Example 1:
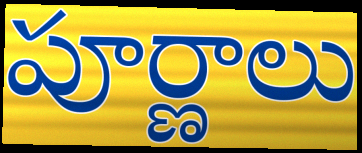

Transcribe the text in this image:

పూర్ణాలు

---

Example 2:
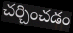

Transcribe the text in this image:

చర్చించడం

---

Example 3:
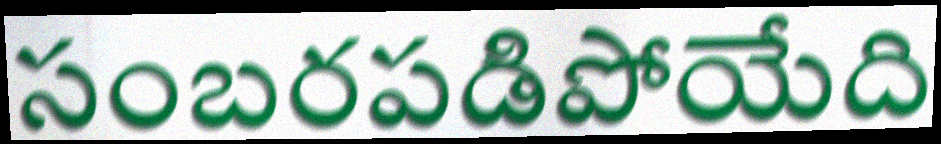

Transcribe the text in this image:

సంబరపడిపోయేది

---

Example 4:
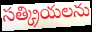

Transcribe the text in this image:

సత్క్రియలను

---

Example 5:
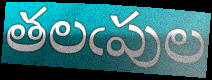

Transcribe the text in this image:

తలఁపుల